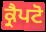
ਕ੍ਰੈਪਟੋ